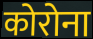
कोरोना